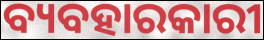
ବ୍ୟବହାରକାରୀ